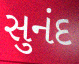
સુનંદ